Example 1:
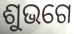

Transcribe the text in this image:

ଶୁଭଗେ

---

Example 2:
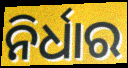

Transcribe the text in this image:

ନିର୍ଧାର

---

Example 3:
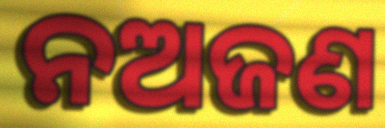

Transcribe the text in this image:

ନଅଜଣ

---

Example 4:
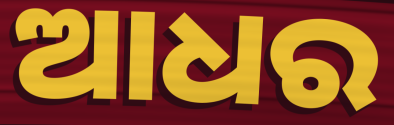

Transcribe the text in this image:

ଆଧର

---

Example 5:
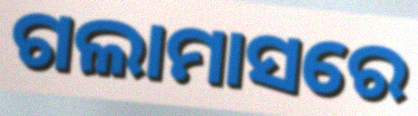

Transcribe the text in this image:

ଗଲାମାସରେ